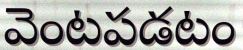
వెంటపడటం